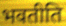
भवतीति